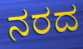
ನರದ